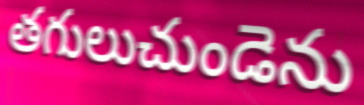
తగులుచుండెను